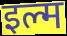
इल्म